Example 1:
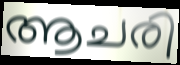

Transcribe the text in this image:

ആചരി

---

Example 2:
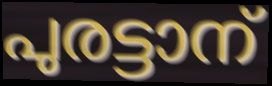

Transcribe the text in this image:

പുരട്ടാന്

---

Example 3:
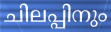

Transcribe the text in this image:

ചിലപ്പിനും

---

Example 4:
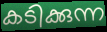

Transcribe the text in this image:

കടിക്കുന്ന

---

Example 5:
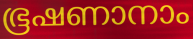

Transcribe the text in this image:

ഭൂഷണാനാം